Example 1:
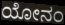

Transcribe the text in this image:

ಯೋನಂ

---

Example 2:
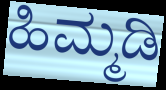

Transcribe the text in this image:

ಹಿಮ್ಮಡಿ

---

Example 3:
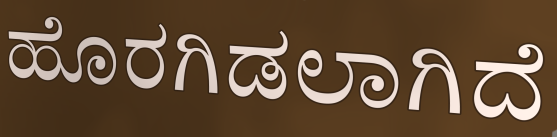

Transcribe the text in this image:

ಹೊರಗಿಡಲಾಗಿದೆ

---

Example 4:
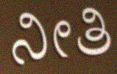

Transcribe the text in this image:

ನೀತಿ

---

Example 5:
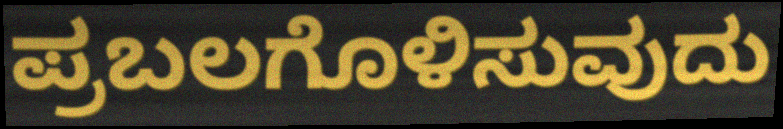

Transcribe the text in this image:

ಪ್ರಬಲಗೊಳಿಸುವುದು